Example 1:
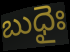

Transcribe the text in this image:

బుధైః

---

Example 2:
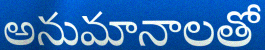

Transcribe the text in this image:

అనుమానాలతో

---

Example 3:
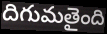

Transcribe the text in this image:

దిగుమతైంది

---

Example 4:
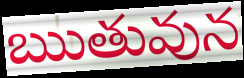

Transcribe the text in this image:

ఋతువున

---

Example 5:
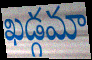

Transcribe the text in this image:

ఖడ్గమా